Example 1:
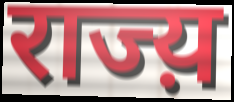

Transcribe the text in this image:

राज्य़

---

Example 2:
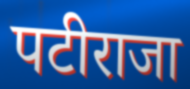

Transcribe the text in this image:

पटीराजा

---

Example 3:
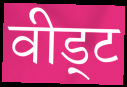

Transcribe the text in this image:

वीड्ट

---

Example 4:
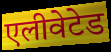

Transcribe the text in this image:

एलीवेटेड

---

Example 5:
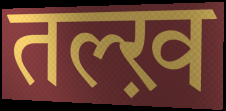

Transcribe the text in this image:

तल्ख़